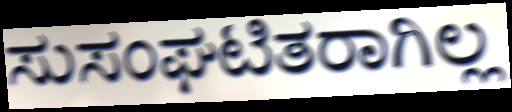
ಸುಸಂಘಟಿತರಾಗಿಲ್ಲ